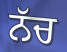
ਨੱਚ